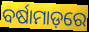
ବର୍ଷାମାଡ଼ରେ